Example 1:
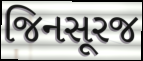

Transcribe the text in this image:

જિનસૂરજ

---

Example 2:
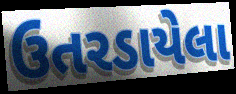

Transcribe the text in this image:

ઉતરડાયેલા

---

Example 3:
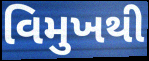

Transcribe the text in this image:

વિમુખથી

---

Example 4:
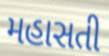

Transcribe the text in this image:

મહાસતી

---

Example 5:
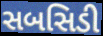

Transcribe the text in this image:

સબસિડી